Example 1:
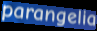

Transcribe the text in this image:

parangelia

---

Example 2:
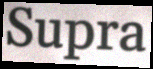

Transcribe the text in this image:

Supra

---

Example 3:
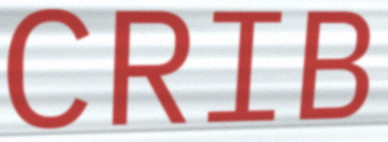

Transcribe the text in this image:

CRIB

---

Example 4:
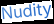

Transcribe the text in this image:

Nudity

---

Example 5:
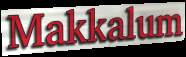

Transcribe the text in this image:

Makkalum